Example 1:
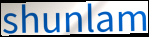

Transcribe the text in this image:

shunlam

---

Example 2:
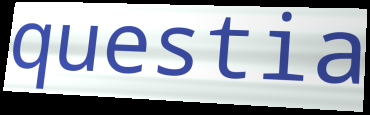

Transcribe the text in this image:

questia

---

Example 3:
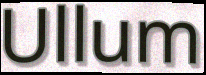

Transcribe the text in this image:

Ullum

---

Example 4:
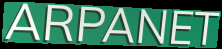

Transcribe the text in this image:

ARPANET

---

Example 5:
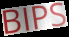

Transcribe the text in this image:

BIPS